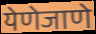
येणेजाणे